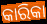
କାରିକା